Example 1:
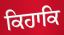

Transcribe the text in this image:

ਕਿਹਾਕਿ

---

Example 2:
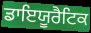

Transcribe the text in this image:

ਡਾਇਯੂਰੈਟਿਕ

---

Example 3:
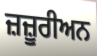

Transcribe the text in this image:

ਜ਼ਜ਼ੂਰੀਅਨ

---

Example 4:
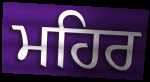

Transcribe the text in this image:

ਮਹਿਰ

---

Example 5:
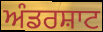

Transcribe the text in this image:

ਅੰਡਰਸ਼ਾਟ